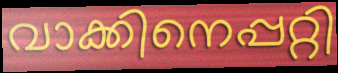
വാക്കിനെപ്പറ്റി